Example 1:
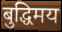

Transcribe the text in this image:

बुद्धिमय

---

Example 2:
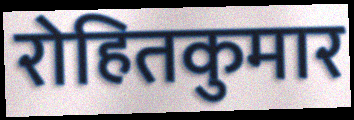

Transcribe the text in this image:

रोहितकुमार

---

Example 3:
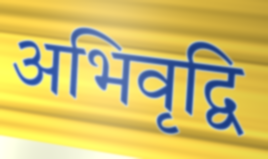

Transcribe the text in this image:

अभिवृद्वि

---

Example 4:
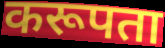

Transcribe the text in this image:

करूपता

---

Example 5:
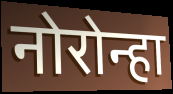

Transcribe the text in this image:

नोरोन्हा